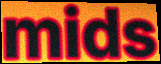
mids